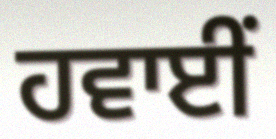
ਹਵਾਈਂ